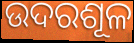
ଉଦରଶୂଳ